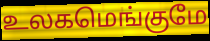
உலகமெங்குமே